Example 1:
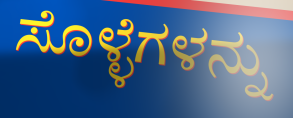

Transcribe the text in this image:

ಸೊಳ್ಳೆಗಳನ್ನು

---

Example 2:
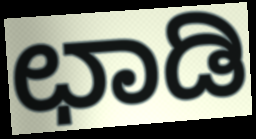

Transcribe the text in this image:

ಛಾಡಿ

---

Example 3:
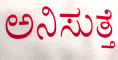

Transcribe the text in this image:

ಅನಿಸುತ್ತೆ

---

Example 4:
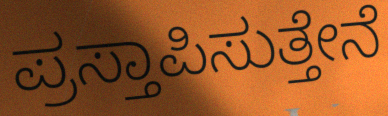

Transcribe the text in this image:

ಪ್ರಸ್ತಾಪಿಸುತ್ತೇನೆ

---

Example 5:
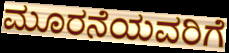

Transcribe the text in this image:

ಮೂರನೆಯವರಿಗೆ